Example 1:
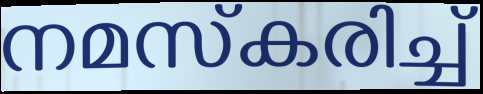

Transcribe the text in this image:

നമസ്‌കരിച്ച്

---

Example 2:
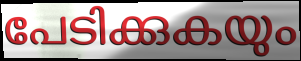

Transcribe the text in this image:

പേടിക്കുകയും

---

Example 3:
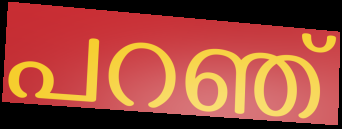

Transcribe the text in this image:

പറഞ്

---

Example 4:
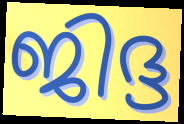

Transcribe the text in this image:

ജിദ്ദ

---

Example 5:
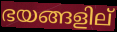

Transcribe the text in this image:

ഭയങ്ങളില്